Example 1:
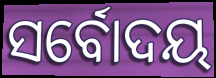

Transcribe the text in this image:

ସର୍ବୋଦୟ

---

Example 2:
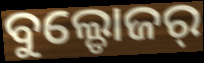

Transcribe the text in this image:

ବୁଲ୍ଡୋଜର୍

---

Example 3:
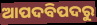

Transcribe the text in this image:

ଆପଦବିପଦରୁ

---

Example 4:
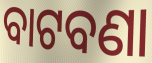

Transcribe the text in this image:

ବାଟବଣା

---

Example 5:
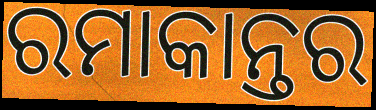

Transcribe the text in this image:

ରମାକାନ୍ତର